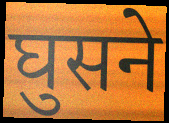
घुसने